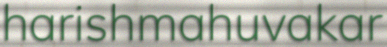
harishmahuvakar